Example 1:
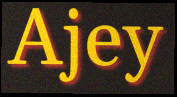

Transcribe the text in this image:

Ajey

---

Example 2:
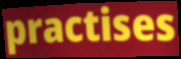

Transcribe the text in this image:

practises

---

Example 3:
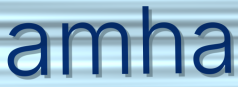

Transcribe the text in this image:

amha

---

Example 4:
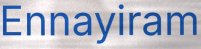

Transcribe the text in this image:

Ennayiram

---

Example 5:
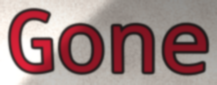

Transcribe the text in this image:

Gone